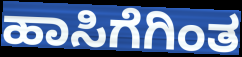
ಹಾಸಿಗೆಗಿಂತ